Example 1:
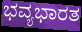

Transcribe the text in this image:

ಭವ್ಯಭಾರತ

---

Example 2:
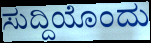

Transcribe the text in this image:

ಸುದ್ದಿಯೊಂದು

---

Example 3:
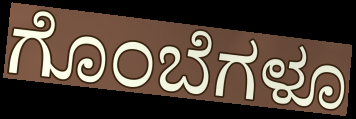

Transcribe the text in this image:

ಗೊಂಬೆಗಳೂ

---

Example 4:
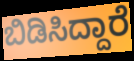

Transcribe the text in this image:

ಬಿಡಿಸಿದ್ದಾರೆ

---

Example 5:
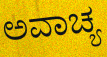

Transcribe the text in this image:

ಅವಾಚ್ಯ